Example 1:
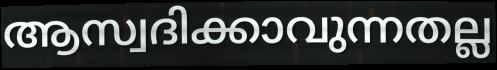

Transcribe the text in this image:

ആസ്വദിക്കാവുന്നതല്ല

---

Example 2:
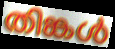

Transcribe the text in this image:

തിങ്കൾ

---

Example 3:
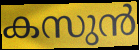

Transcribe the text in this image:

കസുൻ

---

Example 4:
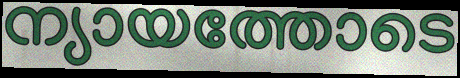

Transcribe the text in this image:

ന്യായത്തോടെ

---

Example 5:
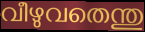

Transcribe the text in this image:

വീഴുവതെന്തു